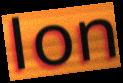
Ion